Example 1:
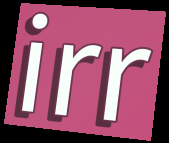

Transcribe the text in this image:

irr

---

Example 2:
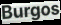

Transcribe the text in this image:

Burgos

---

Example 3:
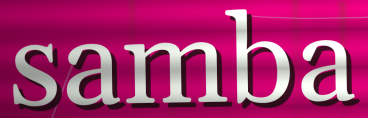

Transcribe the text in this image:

samba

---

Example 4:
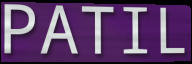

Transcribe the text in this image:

PATIL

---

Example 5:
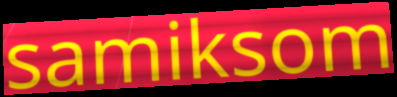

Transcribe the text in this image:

samiksom